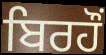
ਬਿਰਹੌਂ